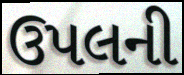
ઉપલની